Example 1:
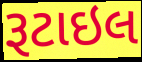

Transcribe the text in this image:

રૂટાઇલ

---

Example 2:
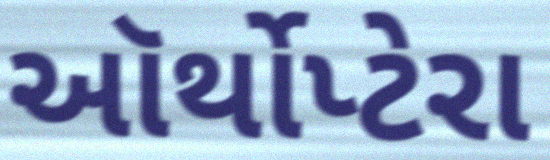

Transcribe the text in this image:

ઑર્થોપ્ટેરા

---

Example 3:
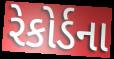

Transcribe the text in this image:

રેકોર્ડના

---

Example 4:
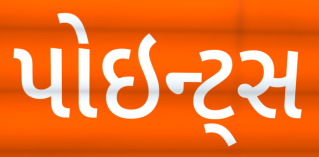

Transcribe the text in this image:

પોઇન્ટ્સ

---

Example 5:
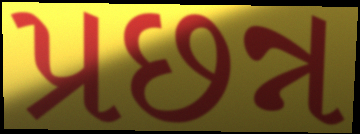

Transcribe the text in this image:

પ્રછન્ન